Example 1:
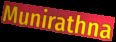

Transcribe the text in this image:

Munirathna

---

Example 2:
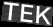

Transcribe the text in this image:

TEK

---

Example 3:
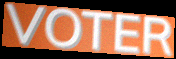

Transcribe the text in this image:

VOTER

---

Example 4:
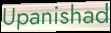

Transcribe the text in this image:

Upanishad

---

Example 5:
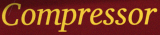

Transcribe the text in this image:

Compressor